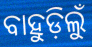
ବାହୁଡ଼ିଲୁଁ